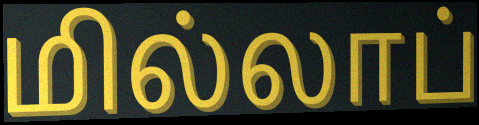
மில்லாப்